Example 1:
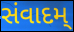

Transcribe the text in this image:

સંવાદમ્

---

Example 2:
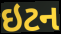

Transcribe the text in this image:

ઇટન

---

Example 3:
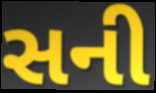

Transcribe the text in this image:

સની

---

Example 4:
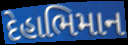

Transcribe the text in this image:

દેહાભિમાન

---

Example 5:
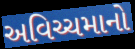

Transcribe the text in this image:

અવિચ્ચમાનો